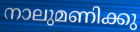
നാലുമണിക്കു